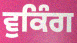
ਵੁਕਿੰਗ